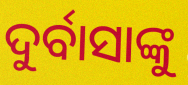
ଦୁର୍ବାସାଙ୍କୁ